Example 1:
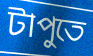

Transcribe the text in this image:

টাপুতে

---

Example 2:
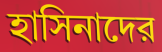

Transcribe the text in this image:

হাসিনাদের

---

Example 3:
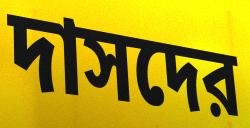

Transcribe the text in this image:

দাসদের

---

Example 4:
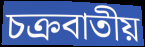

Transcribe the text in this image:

চক্রবাতীয়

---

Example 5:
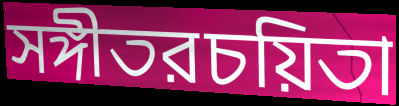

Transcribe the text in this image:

সঙ্গীতরচয়িতা